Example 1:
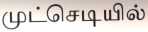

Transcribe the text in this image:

முட்செடியில்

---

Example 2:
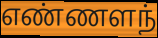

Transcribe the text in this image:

எண்ணளந்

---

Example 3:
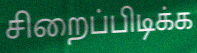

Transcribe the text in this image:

சிறைப்பிடிக்க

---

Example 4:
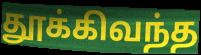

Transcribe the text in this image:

தூக்கிவந்த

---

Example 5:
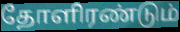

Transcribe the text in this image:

தோளிரண்டும்